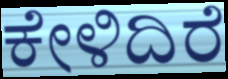
ಕೇಳಿದಿರೆ